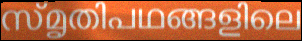
സ്മൃതിപഥങ്ങളിലെ